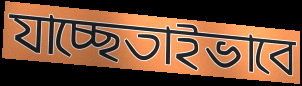
যাচ্ছেতাইভাবে